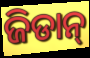
ଜିଡାନ୍